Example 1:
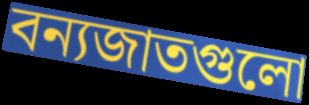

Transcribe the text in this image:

বন্যজাতগুলো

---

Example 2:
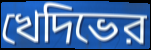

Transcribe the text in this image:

খেদিভের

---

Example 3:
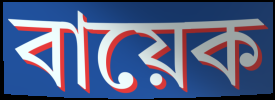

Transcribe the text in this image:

বায়েক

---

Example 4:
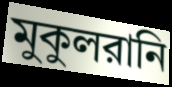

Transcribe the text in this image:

মুকুলরানি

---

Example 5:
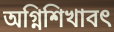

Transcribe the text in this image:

অগ্নিশিখাবৎ